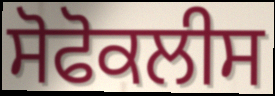
ਸੋਫੋਕਲੀਸ